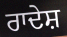
ਰਾਦੇਸ਼